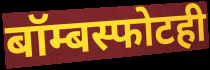
बॉम्बस्फोटही